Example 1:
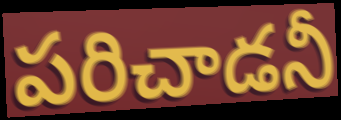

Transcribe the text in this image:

పరిచాడనీ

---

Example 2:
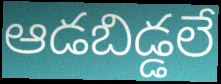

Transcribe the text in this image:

ఆడబిడ్డలే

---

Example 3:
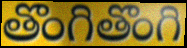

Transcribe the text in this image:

తొంగితొంగి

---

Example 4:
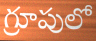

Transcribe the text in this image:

గ్రూపులో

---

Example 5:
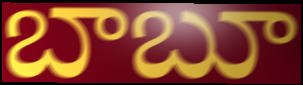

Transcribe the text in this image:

బాబూ